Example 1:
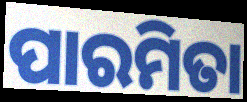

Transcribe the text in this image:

ପାରମିତା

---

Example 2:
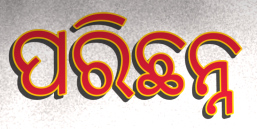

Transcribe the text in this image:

ପରିଛନ୍ନ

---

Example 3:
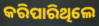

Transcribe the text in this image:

କରିପାରିଥିଲେ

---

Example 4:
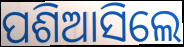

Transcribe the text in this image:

ପଶିଆସିଲେ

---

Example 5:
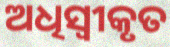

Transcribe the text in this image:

ଅଧିସ୍ୱୀକୃତ